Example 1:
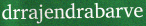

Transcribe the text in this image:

drrajendrabarve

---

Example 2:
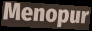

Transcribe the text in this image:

Menopur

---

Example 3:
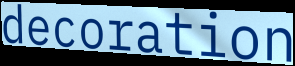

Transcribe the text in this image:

decoration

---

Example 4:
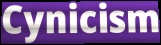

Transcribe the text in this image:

Cynicism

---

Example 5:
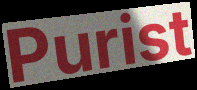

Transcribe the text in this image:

Purist